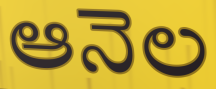
ఆనెల